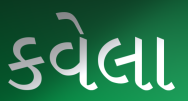
કવેલા